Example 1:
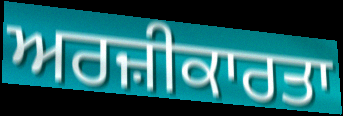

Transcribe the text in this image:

ਅਰਜ਼ੀਕਾਰਤਾ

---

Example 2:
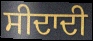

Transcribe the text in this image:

ਸੀਦਾਦੀ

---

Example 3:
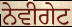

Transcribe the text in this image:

ਨੇਵੀਗੇਟ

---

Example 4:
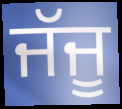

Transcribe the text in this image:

ਜੱਜੂ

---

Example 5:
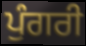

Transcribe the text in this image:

ਪੁੰਗਰੀ